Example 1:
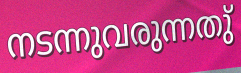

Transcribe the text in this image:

നടന്നുവരുന്നതു്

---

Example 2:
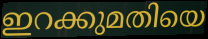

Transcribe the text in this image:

ഇറക്കുമതിയെ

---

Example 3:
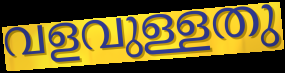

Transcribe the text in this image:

വളവുള്ളതു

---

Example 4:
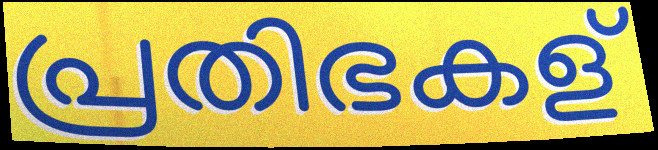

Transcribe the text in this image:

പ്രതിഭകള്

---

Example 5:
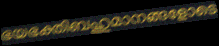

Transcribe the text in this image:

ഭയഭക്തിബഹുമാനങ്ങളോടെ